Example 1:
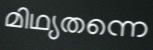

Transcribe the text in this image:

മിഥ്യതന്നെ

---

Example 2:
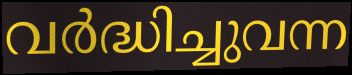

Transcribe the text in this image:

വർദ്ധിച്ചുവന്ന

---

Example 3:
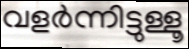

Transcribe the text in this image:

വളർന്നിട്ടുള്ളൂ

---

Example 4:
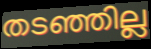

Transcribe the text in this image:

തടഞ്ഞില്ല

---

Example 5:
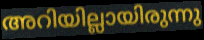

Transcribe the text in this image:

അറിയില്ലായിരുന്നു